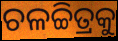
ଚଳଚ୍ଚିତ୍ରକୁ